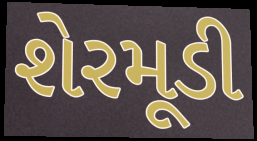
શેરમૂડી